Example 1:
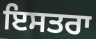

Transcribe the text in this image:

ਇਸਤਰਾ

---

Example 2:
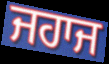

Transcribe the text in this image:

ਜਹਾਜ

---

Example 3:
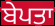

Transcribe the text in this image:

ਬੇਪਤਾ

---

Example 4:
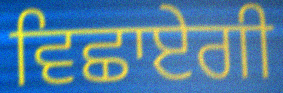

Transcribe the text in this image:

ਵਿਛਾਏਗੀ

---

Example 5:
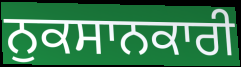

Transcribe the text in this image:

ਨੁਕਸਾਨਕਾਰੀ